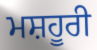
ਮਸ਼ਹੂਰੀ